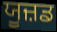
ਯੂਜ਼ਡ